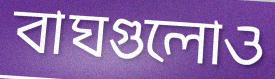
বাঘগুলোও